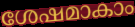
ശേഷമാകാം